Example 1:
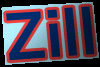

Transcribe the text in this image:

Zill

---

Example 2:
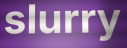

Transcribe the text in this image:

slurry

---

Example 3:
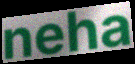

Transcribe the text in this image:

neha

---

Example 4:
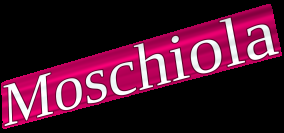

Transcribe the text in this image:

Moschiola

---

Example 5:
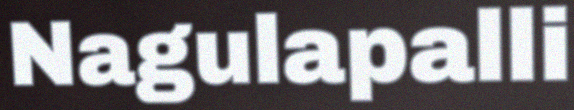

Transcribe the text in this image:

Nagulapalli